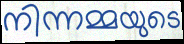
നിന്നമ്മയുടെ